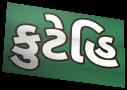
કુટેહિ